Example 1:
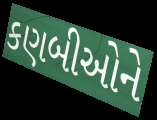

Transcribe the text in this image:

કણબીઓને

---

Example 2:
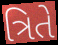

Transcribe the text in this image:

ત્રિતે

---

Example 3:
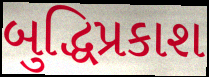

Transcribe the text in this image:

બુદ્ધિપ્રકાશ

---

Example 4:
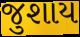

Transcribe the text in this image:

જુશાય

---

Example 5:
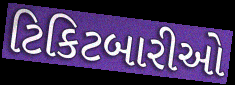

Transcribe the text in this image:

ટિકિટબારીઓ